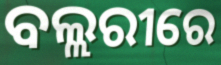
ବଲ୍ଲରୀରେ